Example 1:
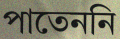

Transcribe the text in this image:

পাতেননি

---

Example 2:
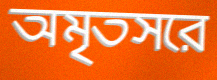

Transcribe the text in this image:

অমৃতসরে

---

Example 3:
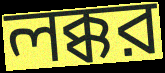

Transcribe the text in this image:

লক্কর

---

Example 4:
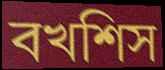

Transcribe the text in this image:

বখশিস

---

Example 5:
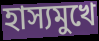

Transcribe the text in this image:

হাস্যমুখে